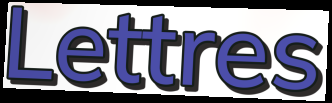
Lettres